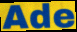
Ade